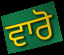
ਵਾਰੋ